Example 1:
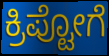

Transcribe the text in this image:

ಕ್ರಿಪ್ಟೋಗೆ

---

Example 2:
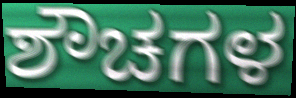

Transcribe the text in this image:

ಶೌಚಗಳ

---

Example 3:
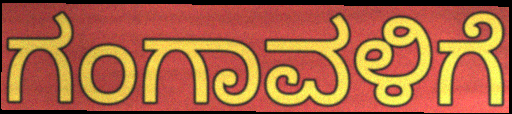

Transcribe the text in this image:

ಗಂಗಾವಳಿಗೆ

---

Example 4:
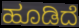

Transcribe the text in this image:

ಹೂಡಿದೆ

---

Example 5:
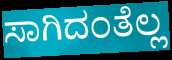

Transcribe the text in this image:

ಸಾಗಿದಂತೆಲ್ಲ